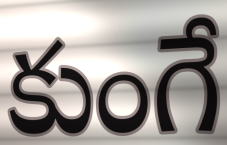
కుంగే